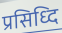
प्रसिध्दि